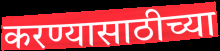
करण्यासाठीच्या